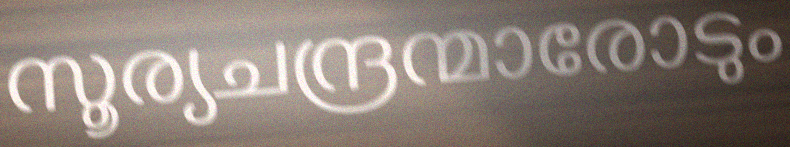
സൂര്യചന്ദ്രന്മാരോടും